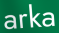
arka